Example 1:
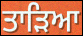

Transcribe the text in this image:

ਤਾੜਿਆ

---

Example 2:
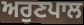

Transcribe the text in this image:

ਅਰੁਣਪਾਲ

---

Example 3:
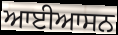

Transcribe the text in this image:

ਆਈਆਸਨ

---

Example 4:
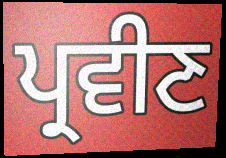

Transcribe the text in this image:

ਪ੍ਰਵੀਣ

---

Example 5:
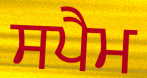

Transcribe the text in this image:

ਸਪੈਮ